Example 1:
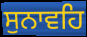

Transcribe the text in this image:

ਸੁਨਾਵਹਿ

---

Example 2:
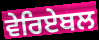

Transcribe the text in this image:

ਵੇਰਿਏਬਲ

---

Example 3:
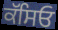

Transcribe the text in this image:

ਕੱਸਿਓ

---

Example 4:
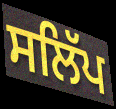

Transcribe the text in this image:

ਸਲਿੱਪ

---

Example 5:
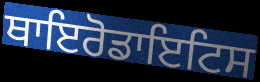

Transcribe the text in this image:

ਥਾਇਰੋਡਾਇਟਿਸ